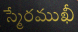
స్మేరముఖీ